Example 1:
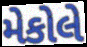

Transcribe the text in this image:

મેકોલે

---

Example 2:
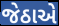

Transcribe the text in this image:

જેઠાએ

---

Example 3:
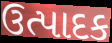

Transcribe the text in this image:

ઉત્પાદક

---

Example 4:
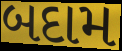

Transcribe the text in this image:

બદામ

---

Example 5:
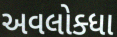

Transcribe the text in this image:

અવલોક્ધા